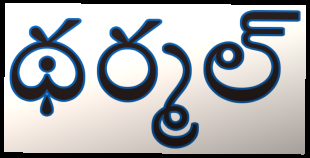
థర్మల్